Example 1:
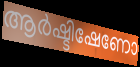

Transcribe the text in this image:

ആർഷ്ടിഷേണോ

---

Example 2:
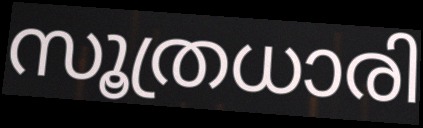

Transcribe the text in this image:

സൂത്രധാരി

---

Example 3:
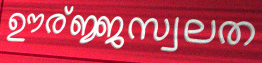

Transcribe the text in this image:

ഊര്ജ്ജസ്വലത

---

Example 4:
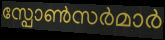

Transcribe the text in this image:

സ്പോൺസർമാർ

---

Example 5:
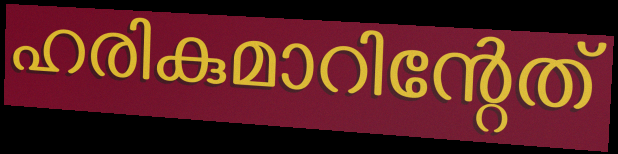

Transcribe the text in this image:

ഹരികുമാറിന്റേത്